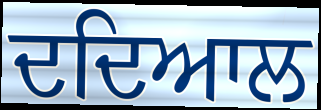
ਦਦਿਆਲ